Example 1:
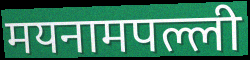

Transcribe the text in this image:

मयनामपल्ली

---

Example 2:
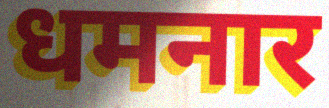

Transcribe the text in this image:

धमनार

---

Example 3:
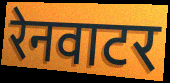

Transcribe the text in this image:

रेनवाटर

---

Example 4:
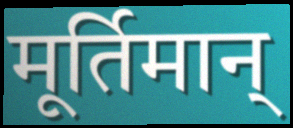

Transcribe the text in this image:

मूर्तिमान्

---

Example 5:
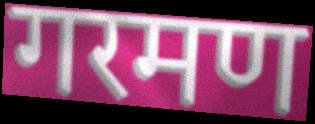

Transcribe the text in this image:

गरमण